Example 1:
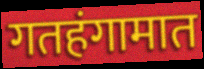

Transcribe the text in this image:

गतहंगामात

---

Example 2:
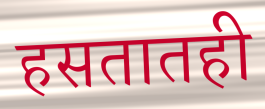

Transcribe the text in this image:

हसतातही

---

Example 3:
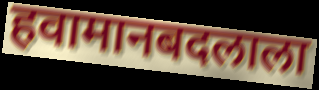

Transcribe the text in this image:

हवामानबदलाला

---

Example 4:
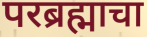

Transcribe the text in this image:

परब्रह्माचा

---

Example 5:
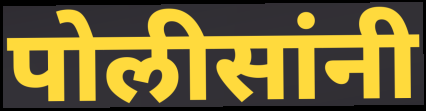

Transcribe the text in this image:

पोलीसांनी